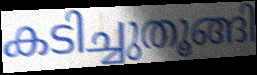
കടിച്ചുതൂങ്ങി